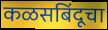
कळसबिंदूचा